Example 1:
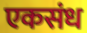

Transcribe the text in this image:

एकसंध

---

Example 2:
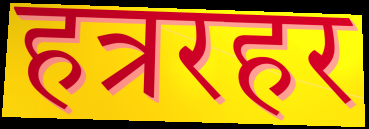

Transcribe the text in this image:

हत्ररहर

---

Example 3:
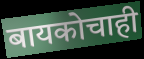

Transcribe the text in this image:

बायकोचाही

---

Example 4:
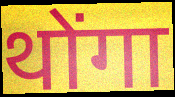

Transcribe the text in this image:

थोंगा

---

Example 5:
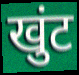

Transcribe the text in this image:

खुंट